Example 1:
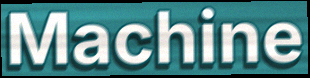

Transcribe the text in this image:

Machine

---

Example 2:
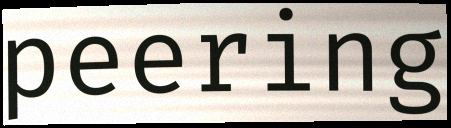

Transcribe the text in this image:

peering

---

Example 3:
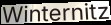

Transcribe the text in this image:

Winternitz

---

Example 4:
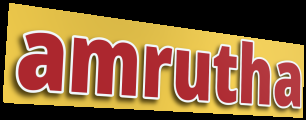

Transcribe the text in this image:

amrutha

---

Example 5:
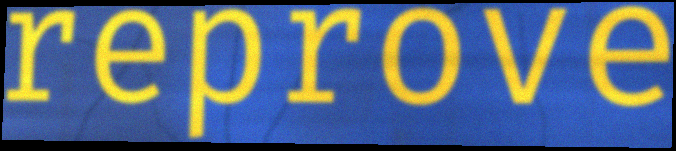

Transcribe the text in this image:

reprove